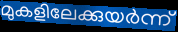
മുകളിലേക്കുയർന്ന്